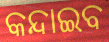
କନ୍ଦାଇବ